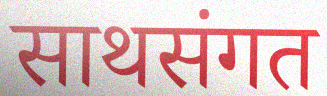
साथसंगत